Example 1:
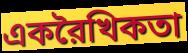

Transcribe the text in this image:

একরৈখিকতা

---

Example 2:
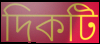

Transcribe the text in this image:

দিকটি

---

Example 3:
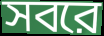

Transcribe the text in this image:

সবরে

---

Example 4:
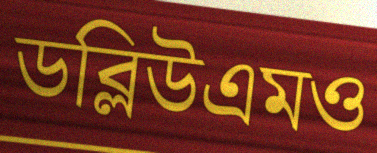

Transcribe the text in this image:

ডব্লিউএমও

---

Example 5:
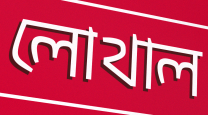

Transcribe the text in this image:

লোথাল